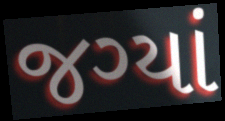
જગ્યાં